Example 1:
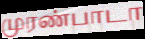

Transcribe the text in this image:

முரண்பாடா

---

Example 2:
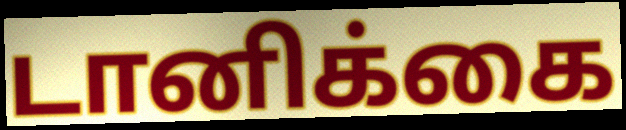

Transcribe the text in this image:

டானிக்கை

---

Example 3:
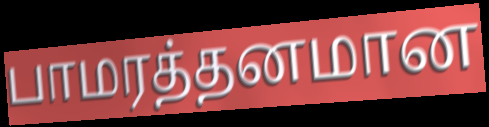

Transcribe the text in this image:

பாமரத்தனமான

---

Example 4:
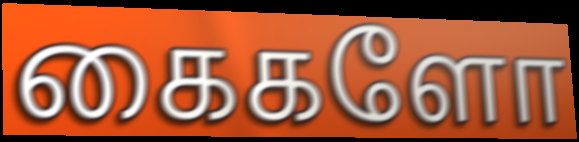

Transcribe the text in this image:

கைகளோ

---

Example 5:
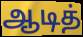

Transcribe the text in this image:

ஆடித்